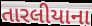
તારલીયાના